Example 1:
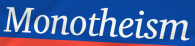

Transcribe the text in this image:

Monotheism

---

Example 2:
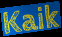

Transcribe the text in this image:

Kaik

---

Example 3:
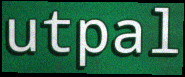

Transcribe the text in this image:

utpal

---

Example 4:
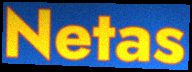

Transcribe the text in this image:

Netas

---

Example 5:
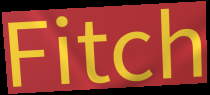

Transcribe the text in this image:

Fitch